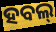
ହବଲ୍